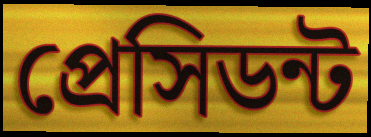
প্রেসিডন্ট